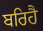
ਬਰਿਹੈ